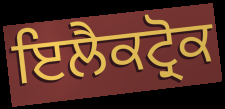
ਇਲੈਕਟ੍ਰੋਕ